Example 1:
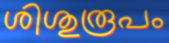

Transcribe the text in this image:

ശിശുരൂപം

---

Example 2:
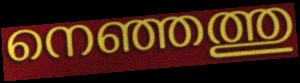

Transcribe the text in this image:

നെഞ്ഞത്തു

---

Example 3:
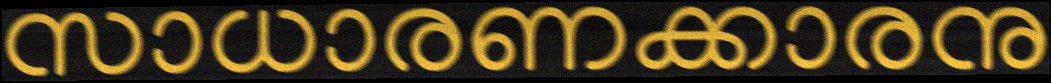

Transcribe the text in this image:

സാധാരണക്കാരനു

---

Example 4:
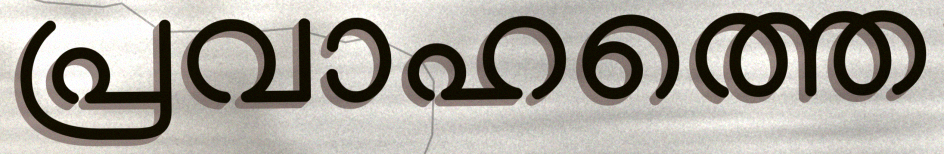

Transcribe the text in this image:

പ്രവാഹത്തെ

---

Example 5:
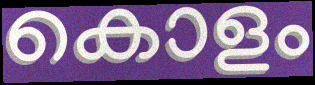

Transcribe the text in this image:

കൊളം